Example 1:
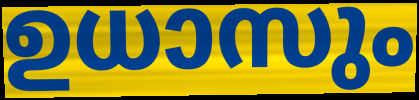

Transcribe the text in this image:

ഉധാസും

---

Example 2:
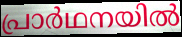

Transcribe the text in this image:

പ്രാർഥനയിൽ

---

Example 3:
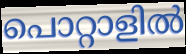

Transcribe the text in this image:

പൊറ്റാളിൽ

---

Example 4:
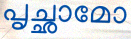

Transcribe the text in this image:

പൃച്ഛാമോ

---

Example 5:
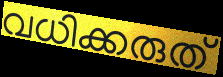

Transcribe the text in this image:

വധിക്കരുത്